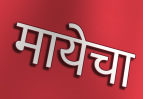
मायेचा